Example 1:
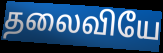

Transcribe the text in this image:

தலைவியே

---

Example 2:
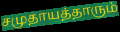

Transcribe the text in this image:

சமுதாயத்தாரும்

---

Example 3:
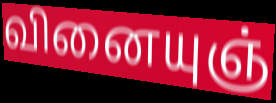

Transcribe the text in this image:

வினையுஞ்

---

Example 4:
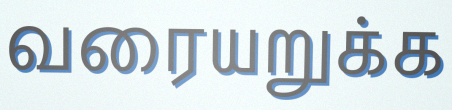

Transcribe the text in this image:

வரையறுக்க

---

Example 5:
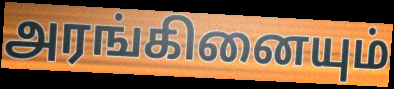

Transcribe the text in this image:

அரங்கினையும்